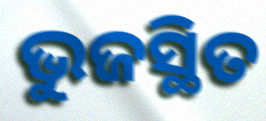
ଭୁଜସ୍ଥିତ